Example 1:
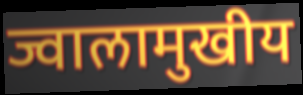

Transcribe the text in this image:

ज्वालामुखीय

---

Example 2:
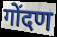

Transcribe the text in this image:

गोंदण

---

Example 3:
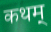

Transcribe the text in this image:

कथम्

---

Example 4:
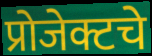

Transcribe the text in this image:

प्रोजेक्टचे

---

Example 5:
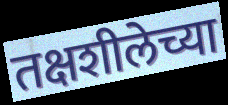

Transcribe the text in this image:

तक्षशीलेच्या